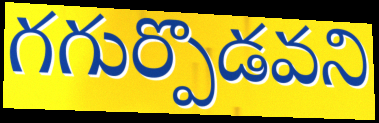
గగుర్పొడవని